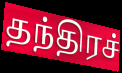
தந்திரச்